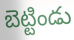
బెట్టిండు